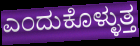
ಎಂದುಕೊಳ್ಳುತ್ತ